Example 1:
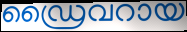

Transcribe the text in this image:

ഡ്രൈവറായ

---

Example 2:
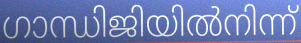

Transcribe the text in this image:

ഗാന്ധിജിയിൽനിന്ന്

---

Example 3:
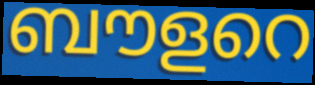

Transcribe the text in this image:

ബൗളറെ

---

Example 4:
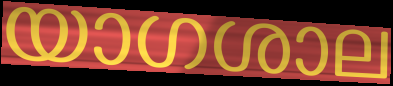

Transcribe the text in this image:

യാഗശാല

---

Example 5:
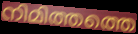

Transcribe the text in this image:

നിമിത്തത്തെ